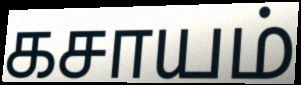
கசாயம்